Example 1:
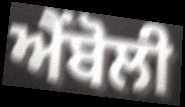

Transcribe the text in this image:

ਐਂਬੋਲੀ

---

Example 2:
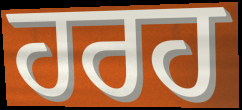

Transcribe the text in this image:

ਹਰਹ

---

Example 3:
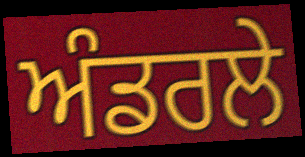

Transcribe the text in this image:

ਅੰਡਰਲੇ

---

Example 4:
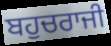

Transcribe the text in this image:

ਬਹੁਚਰਾਜੀ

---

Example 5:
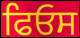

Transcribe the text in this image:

ਫਿਓਸ